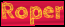
Roper